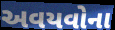
અવયવોના